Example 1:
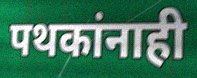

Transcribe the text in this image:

पथकांनाही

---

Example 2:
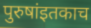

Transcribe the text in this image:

पुरुषांइतकाच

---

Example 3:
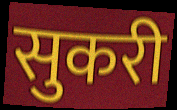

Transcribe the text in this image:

सुकरी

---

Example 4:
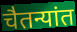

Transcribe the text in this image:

चैतन्यांत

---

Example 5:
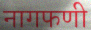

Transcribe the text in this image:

नागफणी